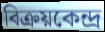
বিক্রয়কেন্দ্র